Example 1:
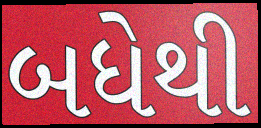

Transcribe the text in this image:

બધેથી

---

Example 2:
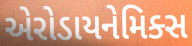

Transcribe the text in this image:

એરોડાયનેમિક્સ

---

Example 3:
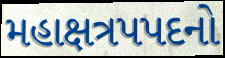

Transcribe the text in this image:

મહાક્ષત્રપપદનો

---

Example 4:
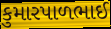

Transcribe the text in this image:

કુમારપાળભાઈ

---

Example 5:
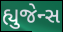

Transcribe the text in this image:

હ્યુજેન્સ